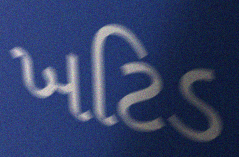
ખટિડ